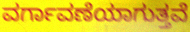
ವರ್ಗಾವಣೆಯಾಗುತ್ತವೆ